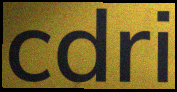
cdri